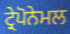
ਟ੍ਰੇਪੋਨੇਮਲ